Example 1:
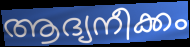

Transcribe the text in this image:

ആദ്യനീക്കം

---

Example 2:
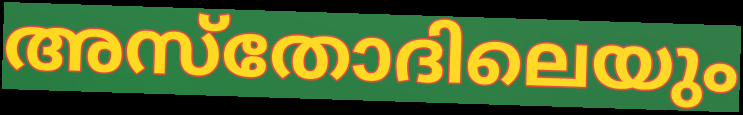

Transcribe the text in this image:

അസ്തോദിലെയും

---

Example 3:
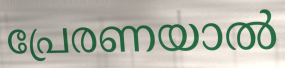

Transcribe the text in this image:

പ്രേരണയാൽ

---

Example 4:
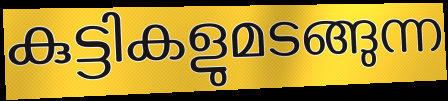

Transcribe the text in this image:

കുട്ടികളുമടങ്ങുന്ന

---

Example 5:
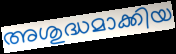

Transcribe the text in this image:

അശുദ്ധമാക്കിയ